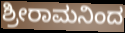
ಶ್ರೀರಾಮನಿಂದ